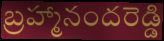
బ్రహ్మానందరెడ్డి